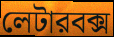
লেটারবক্স